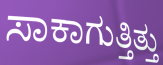
ಸಾಕಾಗುತ್ತಿತ್ತು